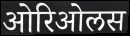
ओरिओलस